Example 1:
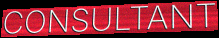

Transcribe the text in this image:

CONSULTANT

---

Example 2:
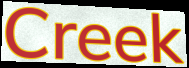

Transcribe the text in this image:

Creek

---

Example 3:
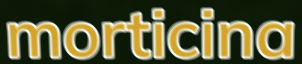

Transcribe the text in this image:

morticina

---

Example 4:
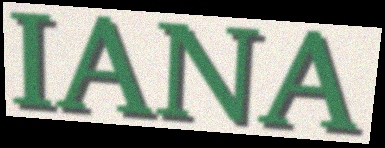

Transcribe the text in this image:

IANA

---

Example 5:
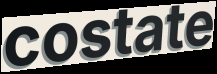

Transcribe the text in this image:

costate